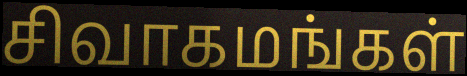
சிவாகமங்கள்